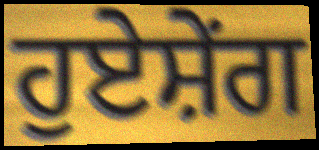
ਹੁਏਸ਼ੇਂਗ